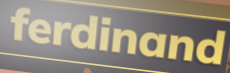
ferdinand